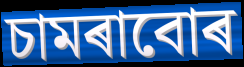
চামৰাবোৰ